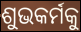
ଶୁଭକର୍ମକୁ